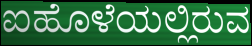
ಐಹೊಳೆಯಲ್ಲಿರುವ